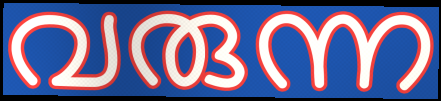
വരുന്ന